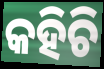
କହିଚି